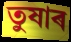
তুষাৰ